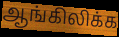
ஆங்கிலிக்க